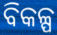
ବିକଳ୍ପ